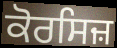
ਕੋਰਸਿਜ਼